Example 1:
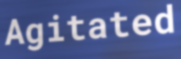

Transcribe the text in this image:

Agitated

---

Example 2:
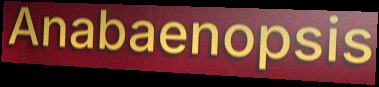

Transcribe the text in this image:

Anabaenopsis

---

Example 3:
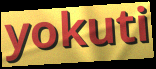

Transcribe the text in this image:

yokuti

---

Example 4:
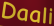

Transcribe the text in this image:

Daali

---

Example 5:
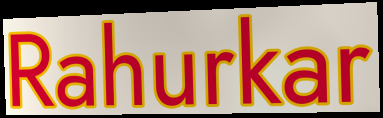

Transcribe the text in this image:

Rahurkar